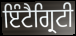
ਇੰਟੈਗ੍ਰਿਟੀ